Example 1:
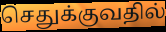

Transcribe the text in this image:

செதுக்குவதில்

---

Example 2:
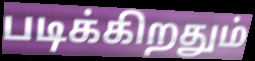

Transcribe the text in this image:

படிக்கிறதும்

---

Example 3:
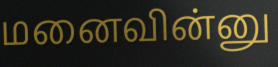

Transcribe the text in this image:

மனைவின்னு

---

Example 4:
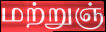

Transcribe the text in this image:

மற்றுஞ்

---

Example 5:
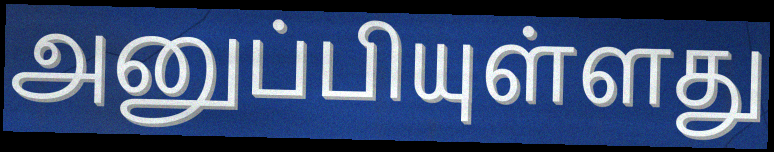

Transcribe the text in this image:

அனுப்பியுள்ளது